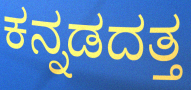
ಕನ್ನಡದತ್ತ